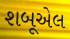
શબૂએલ